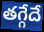
తగ్గేదే